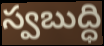
స్వబుద్ధి